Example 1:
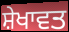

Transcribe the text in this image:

ਸ਼ੇਖਾਵਤ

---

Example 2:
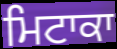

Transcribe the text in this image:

ਮਿਟਾਕਾ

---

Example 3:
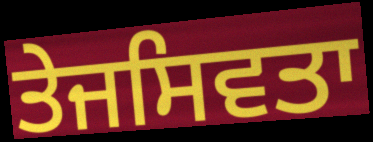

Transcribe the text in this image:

ਤੇਜਸਿਵਤਾ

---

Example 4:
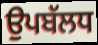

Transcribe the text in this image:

ਉਪਬੱਲਧ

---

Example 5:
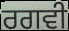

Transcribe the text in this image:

ਰਗਵੀ